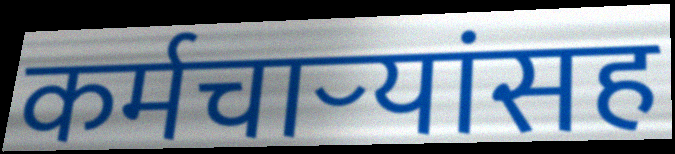
कर्मचाऱ्यांसह